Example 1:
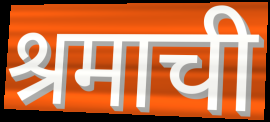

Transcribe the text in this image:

श्रमाची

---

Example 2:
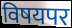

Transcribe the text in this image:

विषयपर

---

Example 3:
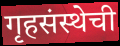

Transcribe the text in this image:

गृहसंस्थेची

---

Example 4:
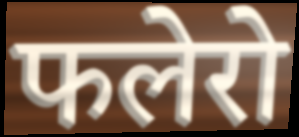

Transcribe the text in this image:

फलेरो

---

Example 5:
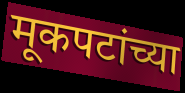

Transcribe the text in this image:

मूकपटांच्या